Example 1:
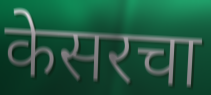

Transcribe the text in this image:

केसरचा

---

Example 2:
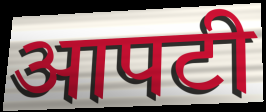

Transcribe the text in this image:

आपटी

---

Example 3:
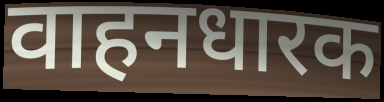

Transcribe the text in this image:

वाहनधारक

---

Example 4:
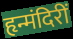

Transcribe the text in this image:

हृन्मंदिरीं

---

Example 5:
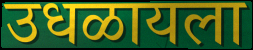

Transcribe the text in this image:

उधळायला